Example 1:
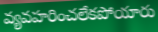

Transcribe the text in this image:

వ్యవహరించలేకపోయారు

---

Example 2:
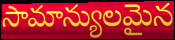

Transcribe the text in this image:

సామాన్యులమైన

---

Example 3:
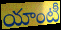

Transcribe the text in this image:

యాంటీ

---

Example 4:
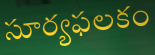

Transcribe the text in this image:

సూర్యఫలకం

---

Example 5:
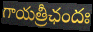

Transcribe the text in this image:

గాయత్రీఛందః